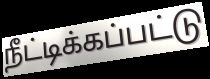
நீட்டிக்கப்பட்டு